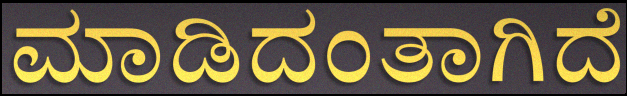
ಮಾಡಿದಂತಾಗಿದೆ